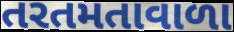
તરતમતાવાળા